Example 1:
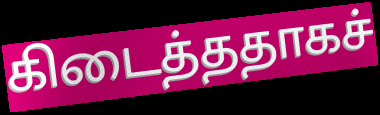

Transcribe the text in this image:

கிடைத்ததாகச்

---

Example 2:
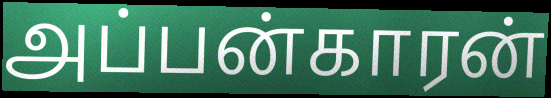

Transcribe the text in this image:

அப்பன்காரன்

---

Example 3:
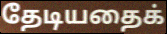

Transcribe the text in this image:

தேடியதைக்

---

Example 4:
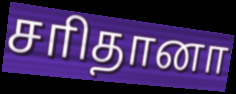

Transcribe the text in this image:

சரிதானா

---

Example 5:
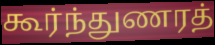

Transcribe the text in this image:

கூர்ந்துணரத்